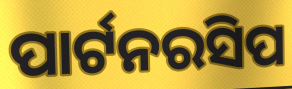
ପାର୍ଟନରସିପ